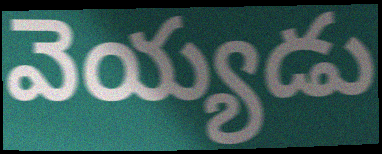
వెయ్యడు